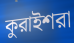
কুরাইশরা